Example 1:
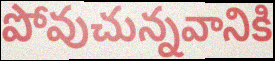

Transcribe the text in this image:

పోవుచున్నవానికి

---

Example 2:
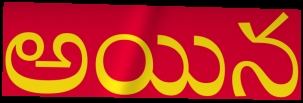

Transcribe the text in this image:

అయిన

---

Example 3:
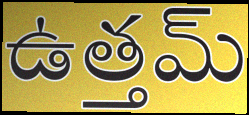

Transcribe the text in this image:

ఉత్తమ్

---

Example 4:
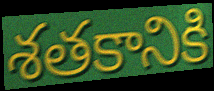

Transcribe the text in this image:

శతకానికి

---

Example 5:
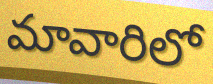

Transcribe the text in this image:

మావారిలో